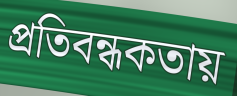
প্রতিবন্ধকতায়